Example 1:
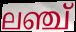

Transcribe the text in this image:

ലഞ്ച്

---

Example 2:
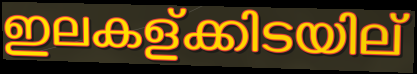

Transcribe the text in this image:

ഇലകള്ക്കിടയില്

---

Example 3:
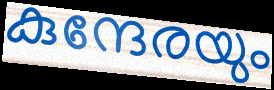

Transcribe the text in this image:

കുന്ദേരയും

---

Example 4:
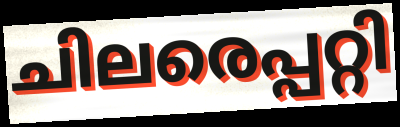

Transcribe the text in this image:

ചിലരെപ്പറ്റി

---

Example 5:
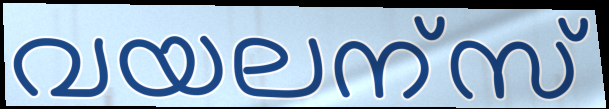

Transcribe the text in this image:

വയലന്സ്